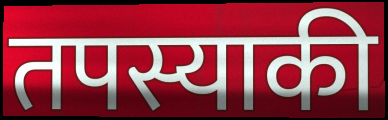
तपस्याकी